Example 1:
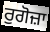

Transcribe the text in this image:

ਰੁਗੋਜ਼ਾ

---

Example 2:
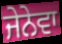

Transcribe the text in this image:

ਜੇਨੇਵਾ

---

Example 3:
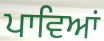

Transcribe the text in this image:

ਪਾਵਿਆਂ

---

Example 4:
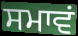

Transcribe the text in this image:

ਸਮਾਵਂ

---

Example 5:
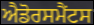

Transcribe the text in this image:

ਐਡੋਰਸਮੈਂਟਸ